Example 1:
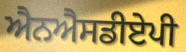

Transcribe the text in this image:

ਐਨਐਸਡੀਏਪੀ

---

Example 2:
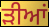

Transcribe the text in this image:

ੜੀਆਂ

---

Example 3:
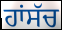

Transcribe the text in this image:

ਹਾਂਸੱਚ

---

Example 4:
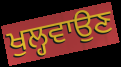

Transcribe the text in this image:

ਖੁਲ੍ਹਵਾਉਣ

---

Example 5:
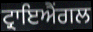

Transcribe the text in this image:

ਟ੍ਰਾਇਐਂਗਲ